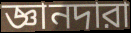
জ্ঞানদারা